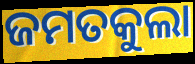
ଜମତକୁଲା